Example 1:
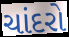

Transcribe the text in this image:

ચાંદરો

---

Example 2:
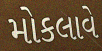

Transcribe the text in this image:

મોકલાવે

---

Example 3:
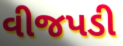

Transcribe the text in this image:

વીજપડી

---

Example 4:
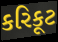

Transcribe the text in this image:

કરિકૂટ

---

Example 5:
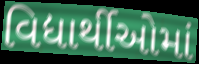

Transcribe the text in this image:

વિદ્યાર્થીઓમાં